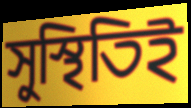
সুস্থিতিই